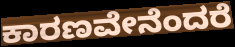
ಕಾರಣವೇನೆಂದರೆ